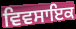
ਵਿਵਸਾਇਕ